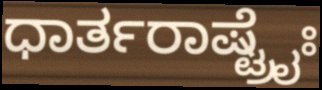
ಧಾರ್ತರಾಷ್ಟ್ರೈಃ